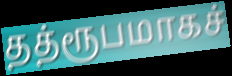
தத்ரூபமாகச்